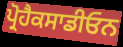
ਪ੍ਰੋਹੈਕਸਾਡੀਓਨ